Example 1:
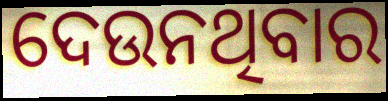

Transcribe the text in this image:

ଦେଉନଥିବାର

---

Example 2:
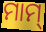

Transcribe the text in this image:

ମାମ୍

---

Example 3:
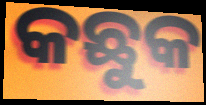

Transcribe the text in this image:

କଛୁକ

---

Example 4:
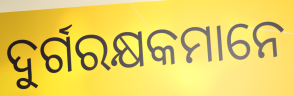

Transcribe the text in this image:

ଦୁର୍ଗରକ୍ଷକମାନେ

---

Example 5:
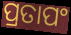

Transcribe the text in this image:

ପ୍ରତାପଂ